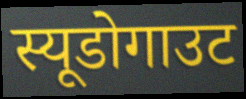
स्यूडोगाउट